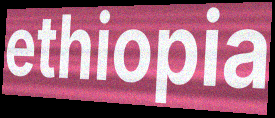
ethiopia